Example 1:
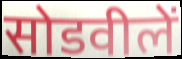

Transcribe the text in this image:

सोडवीलें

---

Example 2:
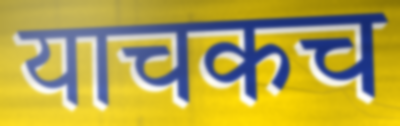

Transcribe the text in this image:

याचकच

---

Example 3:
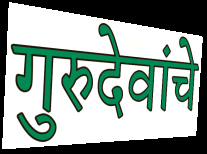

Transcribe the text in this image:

गुरुदेवांचे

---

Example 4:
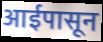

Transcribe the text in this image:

आईपासून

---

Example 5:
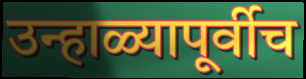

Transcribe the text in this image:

उन्हाळ्यापूर्वीच